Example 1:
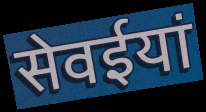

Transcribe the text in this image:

सेवईयां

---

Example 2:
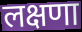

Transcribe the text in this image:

लक्षणा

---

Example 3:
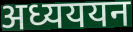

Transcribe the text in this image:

अध्यययन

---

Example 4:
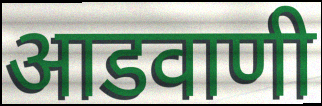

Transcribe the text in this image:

आडवाणी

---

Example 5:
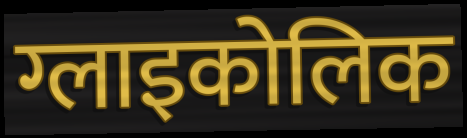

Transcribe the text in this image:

ग्लाइकोलिक